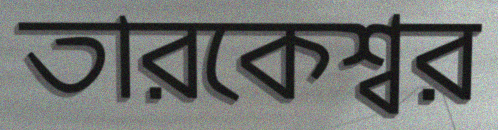
তারকেশ্বর